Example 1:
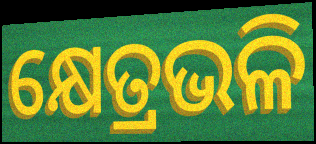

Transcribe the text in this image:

କ୍ଷେତ୍ରଭଳି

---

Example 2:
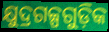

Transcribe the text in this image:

କ୍ଷୁଦ୍ରଗଳ୍ପଗୁଡ଼ିକ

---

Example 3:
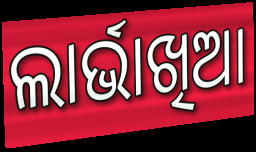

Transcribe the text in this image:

ଲାର୍ଭାଖିଆ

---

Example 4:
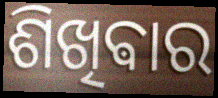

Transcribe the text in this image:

ଶିଖିଵାର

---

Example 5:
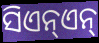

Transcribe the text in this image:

ସିଏନ୍ଏନ୍